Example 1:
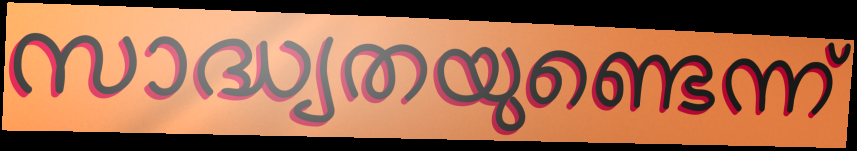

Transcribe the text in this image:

സാദ്ധ്യതയുണ്ടെന്ന്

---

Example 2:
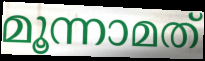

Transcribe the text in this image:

മൂന്നാമത്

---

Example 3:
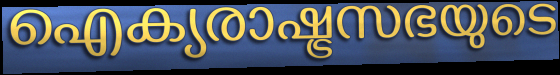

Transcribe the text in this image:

ഐക്യരാഷ്ട്രസഭയുടെ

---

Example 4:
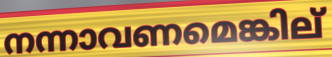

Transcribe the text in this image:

നന്നാവണമെങ്കില്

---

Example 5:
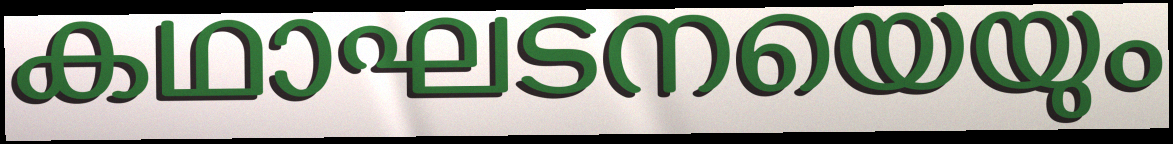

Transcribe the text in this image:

കഥാഘടനയെയും